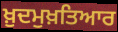
ਖ਼ੁਦਮੁਖ਼ਤਿਆਰ